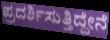
ಪ್ರದರ್ಶಿಸುತ್ತಿದ್ದೇನೆ